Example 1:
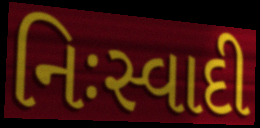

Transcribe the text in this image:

નિઃસ્વાદી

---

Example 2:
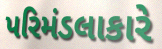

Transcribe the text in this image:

પરિમંડલાકારે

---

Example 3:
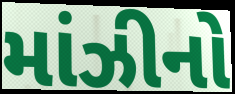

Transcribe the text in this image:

માંઝીનો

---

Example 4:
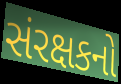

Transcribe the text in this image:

સંરક્ષકનો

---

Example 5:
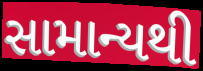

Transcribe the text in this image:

સામાન્યથી